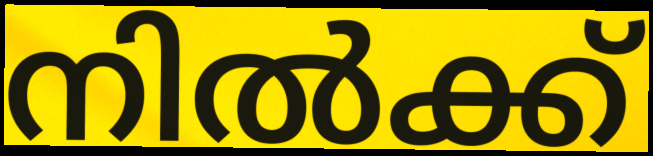
നിൽക്ക്